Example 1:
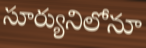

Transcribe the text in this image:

సూర్యునిలోనూ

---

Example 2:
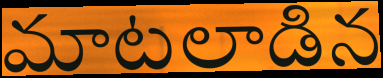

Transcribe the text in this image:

మాటలాడిన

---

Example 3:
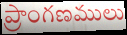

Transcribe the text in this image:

ప్రాంగణములు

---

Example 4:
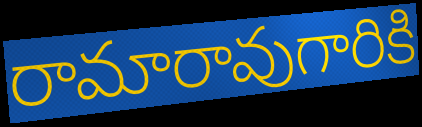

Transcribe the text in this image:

రామారావుగారికి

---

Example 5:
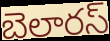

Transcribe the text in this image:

బెలారస్